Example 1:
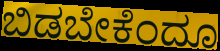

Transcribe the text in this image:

ಬಿಡಬೇಕೆಂದೂ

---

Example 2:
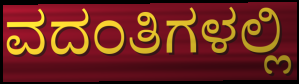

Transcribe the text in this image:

ವದಂತಿಗಳಲ್ಲಿ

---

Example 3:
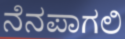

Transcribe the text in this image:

ನೆನಪಾಗಲಿ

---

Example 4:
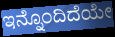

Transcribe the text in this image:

ಇನ್ನೊಂದಿದೆಯೇ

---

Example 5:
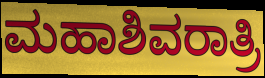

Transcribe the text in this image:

ಮಹಾಶಿವರಾತ್ರಿ